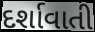
દર્શાવાતી